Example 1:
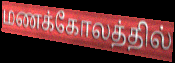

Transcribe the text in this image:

மணக்கோலத்தில்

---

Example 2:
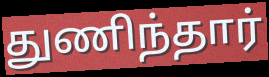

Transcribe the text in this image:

துணிந்தார்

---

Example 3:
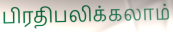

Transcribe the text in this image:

பிரதிபலிக்கலாம்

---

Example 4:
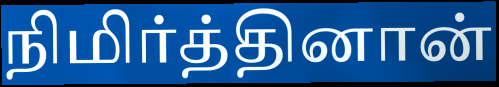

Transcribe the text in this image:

நிமிர்த்தினான்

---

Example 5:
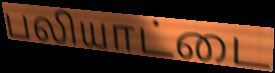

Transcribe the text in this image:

பலியாட்டை